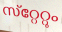
സ്‌റ്റേറ്റും